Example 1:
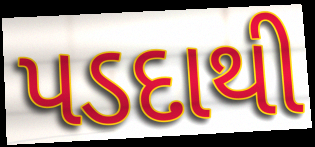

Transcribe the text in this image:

પડદાથી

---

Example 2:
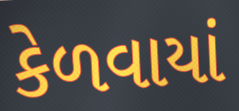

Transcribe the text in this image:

કેળવાયાં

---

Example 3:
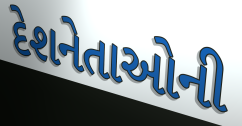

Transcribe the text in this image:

દેશનેતાઓની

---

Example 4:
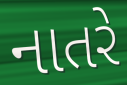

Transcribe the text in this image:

નાતરે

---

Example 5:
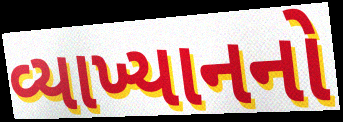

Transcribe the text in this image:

વ્યાખ્યાનનો